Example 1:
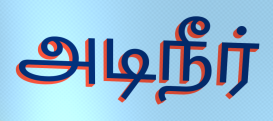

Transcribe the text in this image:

அடிநீர்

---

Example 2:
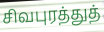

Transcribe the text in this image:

சிவபுரத்துத்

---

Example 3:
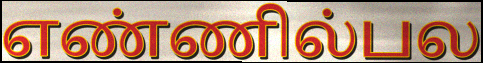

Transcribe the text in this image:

எண்ணில்பல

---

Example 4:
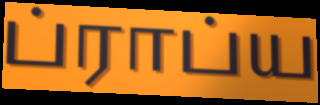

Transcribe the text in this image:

ப்ராப்ய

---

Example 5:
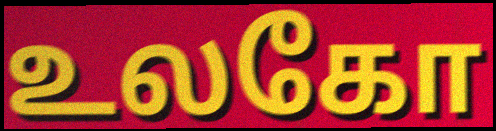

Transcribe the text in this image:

உலகோ